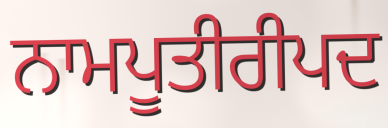
ਨਾਮਪੂਤੀਰੀਪਦ